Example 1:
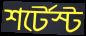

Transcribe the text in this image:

শর্টেস্ট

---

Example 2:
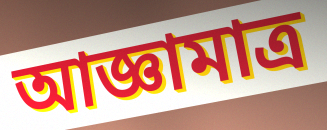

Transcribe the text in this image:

আজ্ঞামাত্র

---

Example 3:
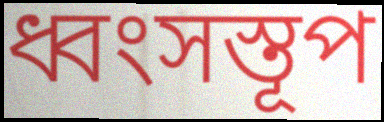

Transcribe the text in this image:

ধ্বংসস্তূপ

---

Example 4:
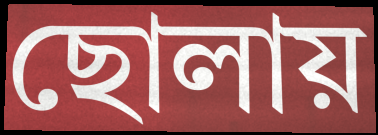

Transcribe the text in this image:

ছোলায়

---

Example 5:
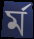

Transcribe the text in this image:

র্ম